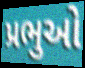
પ્રભુઓ